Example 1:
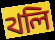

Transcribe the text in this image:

থলি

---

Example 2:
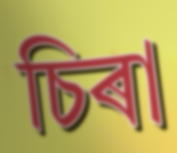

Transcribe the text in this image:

চিৰা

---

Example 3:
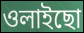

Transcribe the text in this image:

ওলাইছো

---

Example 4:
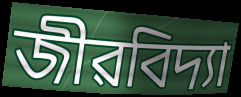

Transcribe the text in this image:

জীৱবিদ্যা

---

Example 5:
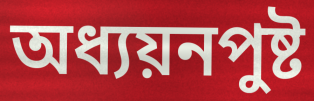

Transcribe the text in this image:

অধ্যয়নপুষ্ট